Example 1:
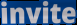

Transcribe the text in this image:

invite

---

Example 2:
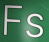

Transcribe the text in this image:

Fs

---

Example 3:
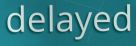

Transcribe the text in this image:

delayed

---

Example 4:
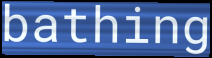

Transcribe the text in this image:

bathing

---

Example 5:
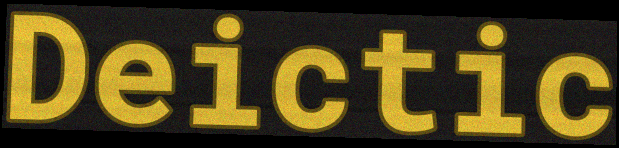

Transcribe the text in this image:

Deictic